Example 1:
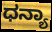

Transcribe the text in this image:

ಧನ್ಯಾ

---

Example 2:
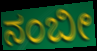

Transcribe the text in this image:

ನಂಬೀ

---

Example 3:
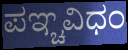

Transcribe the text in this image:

ಪಞ್ಚವಿಧಂ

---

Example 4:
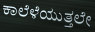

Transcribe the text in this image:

ಕಾಲೆಳೆಯುತ್ತಲೇ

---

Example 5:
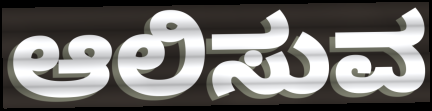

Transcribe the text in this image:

ಆಲಿಸುವ